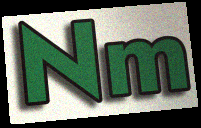
Nm